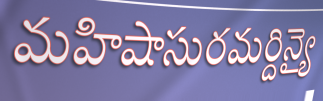
మహిషాసురమర్దిన్యై